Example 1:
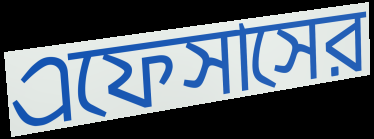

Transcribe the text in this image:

এফেসাসের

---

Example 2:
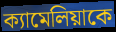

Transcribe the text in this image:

ক্যামেলিয়াকে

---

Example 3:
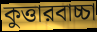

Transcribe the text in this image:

কুত্তারবাচ্চা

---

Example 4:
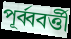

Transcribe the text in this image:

পূর্ব্ববর্ত্তী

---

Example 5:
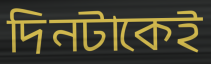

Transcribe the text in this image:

দিনটাকেই